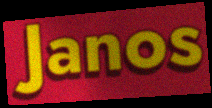
Janos